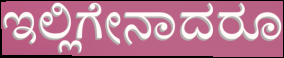
ಇಲ್ಲಿಗೇನಾದರೂ